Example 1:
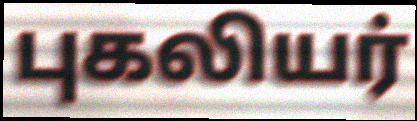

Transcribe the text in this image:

புகலியர்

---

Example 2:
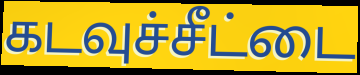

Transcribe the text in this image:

கடவுச்சீட்டை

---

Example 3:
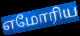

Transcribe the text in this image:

எமோரிய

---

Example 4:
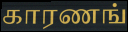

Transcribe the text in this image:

காரணங்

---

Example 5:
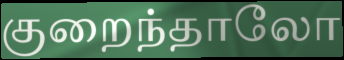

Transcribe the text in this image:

குறைந்தாலோ